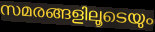
സമരങ്ങളിലൂടെയും